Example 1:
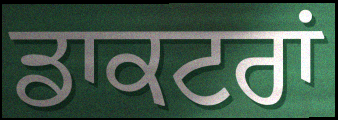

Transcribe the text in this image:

ਡਾਕਟਰਾਂ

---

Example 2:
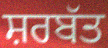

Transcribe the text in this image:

ਸ਼ਰਬੱਤ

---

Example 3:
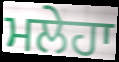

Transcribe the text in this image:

ਮਲੇਹਾ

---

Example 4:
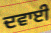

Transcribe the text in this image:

ਦਵਾਈ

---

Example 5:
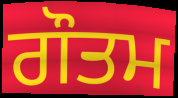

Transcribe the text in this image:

ਗੌਤਮ